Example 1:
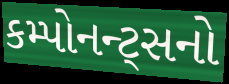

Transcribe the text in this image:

કમ્પોનન્ટ્સનો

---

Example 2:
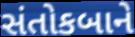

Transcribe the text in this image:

સંતોકબાને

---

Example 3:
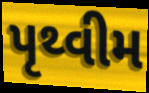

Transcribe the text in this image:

પૃથ્વીમ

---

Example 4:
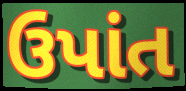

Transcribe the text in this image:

ઉપાંત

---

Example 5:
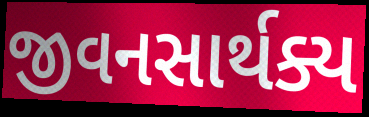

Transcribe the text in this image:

જીવનસાર્થક્ય